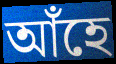
আঁহে